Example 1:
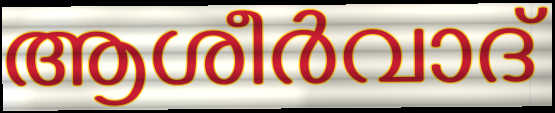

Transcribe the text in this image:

ആശീർവാദ്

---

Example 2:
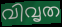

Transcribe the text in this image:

വിവൃത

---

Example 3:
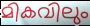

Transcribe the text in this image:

മികവിലും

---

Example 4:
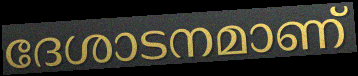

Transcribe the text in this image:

ദേശാടനമാണ്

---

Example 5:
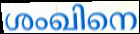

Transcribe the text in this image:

ശംഖിനെ